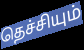
தெச்சியும்